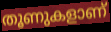
തൂണുകളാണ്